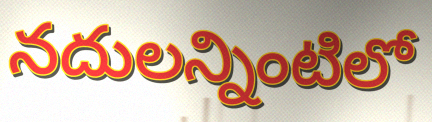
నదులన్నింటిలో